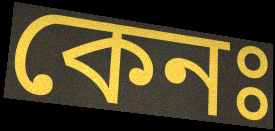
কেনঃ